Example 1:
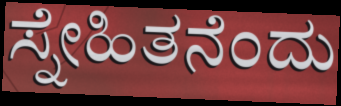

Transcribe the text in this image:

ಸ್ನೇಹಿತನೆಂದು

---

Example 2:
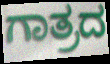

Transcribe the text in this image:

ಗಾತ್ರದ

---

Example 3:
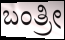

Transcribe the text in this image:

ಬಂತ್ರೀ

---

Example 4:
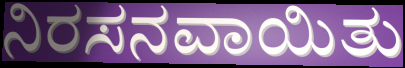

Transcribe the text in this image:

ನಿರಸನವಾಯಿತು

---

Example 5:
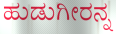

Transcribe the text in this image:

ಹುಡುಗೀರನ್ನ